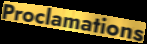
Proclamations